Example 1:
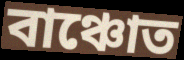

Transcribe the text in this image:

বাঞ্চোত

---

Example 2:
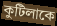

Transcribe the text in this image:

কুটিলাকে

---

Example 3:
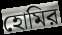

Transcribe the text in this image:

হোমির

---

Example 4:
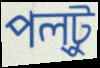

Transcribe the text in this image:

পল্‌টু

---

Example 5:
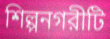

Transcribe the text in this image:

শিল্পনগরীটি